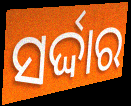
ସର୍ଦ୍ଦାର